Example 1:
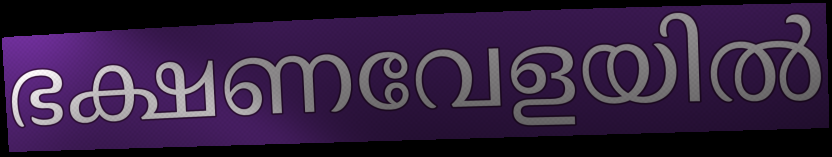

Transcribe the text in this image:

ഭക്ഷണവേളയിൽ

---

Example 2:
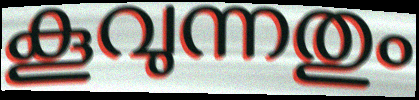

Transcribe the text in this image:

കൂവുന്നതും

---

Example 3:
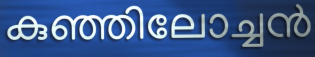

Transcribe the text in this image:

കുഞ്ഞിലോച്ചൻ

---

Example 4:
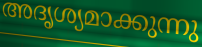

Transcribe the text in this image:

അദൃശ്യമാക്കുന്നു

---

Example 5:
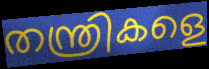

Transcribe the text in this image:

തന്ത്രികളെ